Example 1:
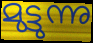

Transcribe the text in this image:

മുട്ടുന്നു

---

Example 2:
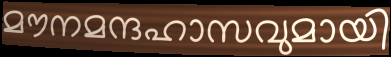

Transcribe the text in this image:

മൗനമന്ദഹാസവുമായി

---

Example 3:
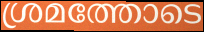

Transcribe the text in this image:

ശ്രമത്തോടെ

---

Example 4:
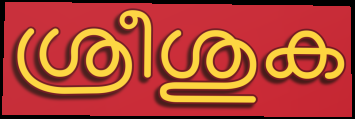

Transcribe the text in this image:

ശ്രീശുക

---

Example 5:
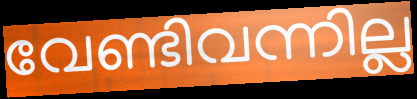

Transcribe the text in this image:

വേണ്ടിവന്നില്ല